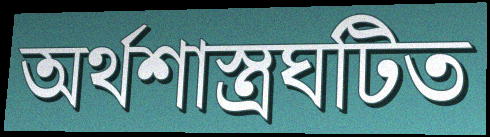
অর্থশাস্ত্রঘটিত